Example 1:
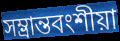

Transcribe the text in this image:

সম্ভ্রান্তবংশীয়া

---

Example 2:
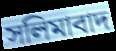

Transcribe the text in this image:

সলিমাবাদ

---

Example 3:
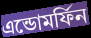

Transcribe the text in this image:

এন্ডোমর্ফিন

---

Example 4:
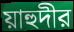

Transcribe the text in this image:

য়াহুদীর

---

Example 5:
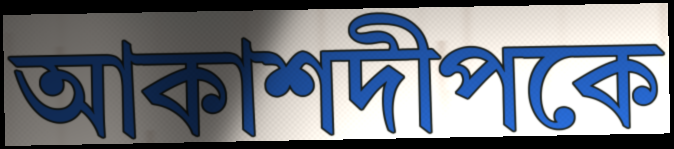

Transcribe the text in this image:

আকাশদীপকে